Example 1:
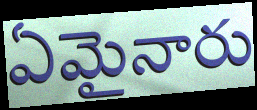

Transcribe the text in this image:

ఏమైనారు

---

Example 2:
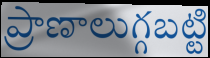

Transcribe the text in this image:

ప్రాణాలుగ్గబట్టి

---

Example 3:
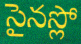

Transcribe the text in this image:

సైనస్లో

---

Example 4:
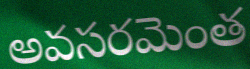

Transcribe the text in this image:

అవసరమెంత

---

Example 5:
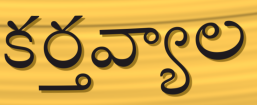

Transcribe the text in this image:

కర్తవ్యాల